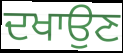
ਦਖਾਉਣ